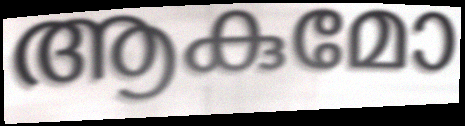
ആകുമോ